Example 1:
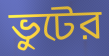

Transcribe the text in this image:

ভুটের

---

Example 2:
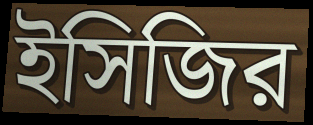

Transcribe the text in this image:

ইসিজির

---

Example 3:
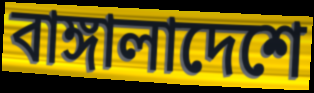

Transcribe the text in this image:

বাঙ্গালাদেশে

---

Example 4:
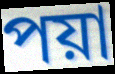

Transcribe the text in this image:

পয়া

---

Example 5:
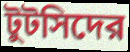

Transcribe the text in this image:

টুটসিদের